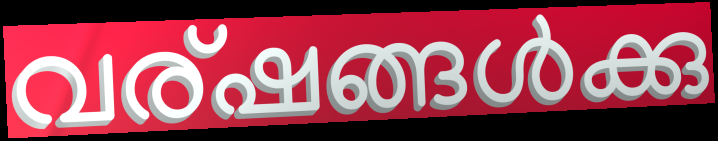
വര്ഷങ്ങൾക്കു